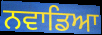
ਨਵਾਡਿਆ